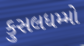
કુસલધમ્મો